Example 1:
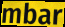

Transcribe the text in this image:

mbar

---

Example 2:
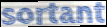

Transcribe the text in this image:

sortant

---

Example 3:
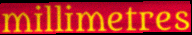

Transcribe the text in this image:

millimetres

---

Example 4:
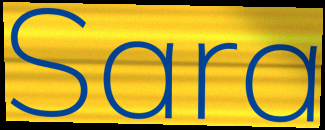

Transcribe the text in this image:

Sara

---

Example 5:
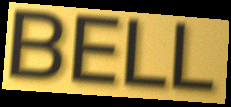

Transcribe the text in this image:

BELL